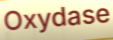
Oxydase